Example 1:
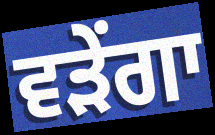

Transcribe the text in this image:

ਵੜੇਂਗਾ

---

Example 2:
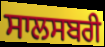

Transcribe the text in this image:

ਸਾਲਸਬਰੀ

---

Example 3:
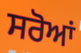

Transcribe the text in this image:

ਸਰੋਆਂ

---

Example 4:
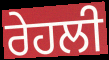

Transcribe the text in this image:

ਰੇਹਲੀ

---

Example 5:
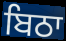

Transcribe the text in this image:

ਬਿਠਾ